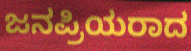
ಜನಪ್ರಿಯರಾದ